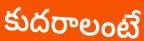
కుదరాలంటే